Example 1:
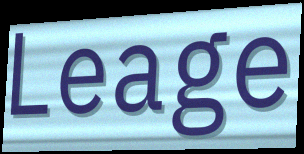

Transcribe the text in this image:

Leage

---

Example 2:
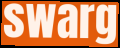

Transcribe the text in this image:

swarg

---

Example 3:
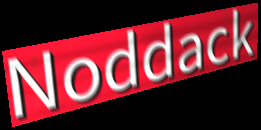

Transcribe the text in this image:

Noddack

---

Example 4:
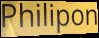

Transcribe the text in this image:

Philipon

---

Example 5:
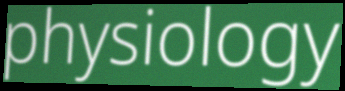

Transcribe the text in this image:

physiology